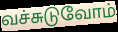
வச்சுடுவோம்